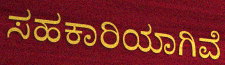
ಸಹಕಾರಿಯಾಗಿವೆ